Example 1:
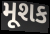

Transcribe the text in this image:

મૂશક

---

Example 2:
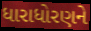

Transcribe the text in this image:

ધારાધોરણને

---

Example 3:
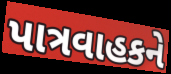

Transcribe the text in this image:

પાત્રવાહકને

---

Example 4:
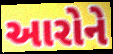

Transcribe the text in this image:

આરોને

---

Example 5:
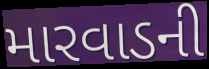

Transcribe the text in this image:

મારવાડની